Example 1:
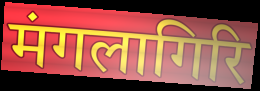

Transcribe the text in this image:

मंगलागिरि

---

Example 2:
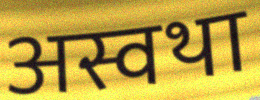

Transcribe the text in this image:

अस्वथा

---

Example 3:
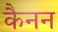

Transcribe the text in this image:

कैनन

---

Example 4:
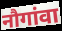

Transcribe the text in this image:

नौगांवा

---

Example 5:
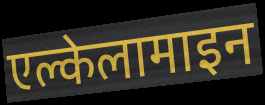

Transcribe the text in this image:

एल्केलामाइन